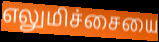
எலுமிச்சையை